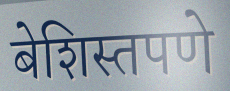
बेशिस्तपणे